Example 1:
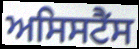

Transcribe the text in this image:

ਅਸਿਸਟੈਂਸ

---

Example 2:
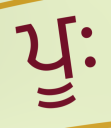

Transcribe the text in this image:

ਪੂਃ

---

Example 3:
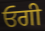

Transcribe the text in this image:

ਓਗੀ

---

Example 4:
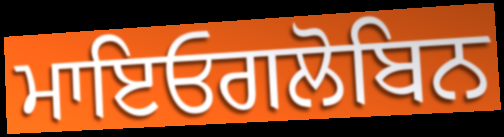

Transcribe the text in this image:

ਮਾਇਓਗਲੋਬਿਨ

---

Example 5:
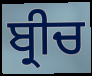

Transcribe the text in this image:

ਬ੍ਰੀਚ